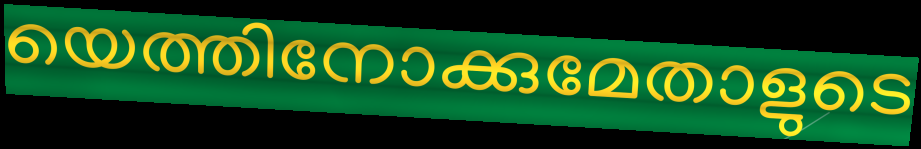
യെത്തിനോക്കുമേതാളുടെ